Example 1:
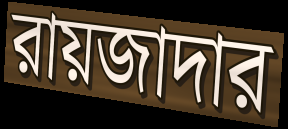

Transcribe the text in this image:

রায়জাদার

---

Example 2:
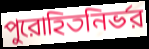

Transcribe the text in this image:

পুরোহিতনির্ভর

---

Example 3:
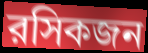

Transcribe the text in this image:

রসিকজন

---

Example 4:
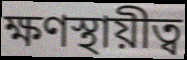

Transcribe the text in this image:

ক্ষণস্থায়ীত্ব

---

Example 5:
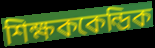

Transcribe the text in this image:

শিক্ষককেন্দ্রিক